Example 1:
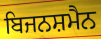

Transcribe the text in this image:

ਬਿਜਨਸ਼ਮੈਨ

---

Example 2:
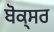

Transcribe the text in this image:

ਬੋਕ੍ਸਰ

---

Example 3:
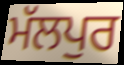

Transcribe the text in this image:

ਮੱਲਪੁਰ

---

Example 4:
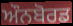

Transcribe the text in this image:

ਔਨਬੋਰਡ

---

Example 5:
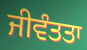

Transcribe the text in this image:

ਜੀਵੰਤਤਾ